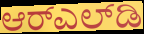
ಆರ್‌ಎಲ್‌ಡಿ